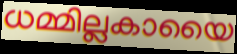
ധമ്മില്ലകായൈ